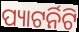
ପ୍ୟାଟର୍ନିଟି